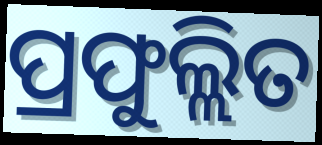
ପ୍ରଫୁଲ୍ଲିତ